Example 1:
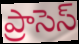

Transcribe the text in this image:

ప్రాసెస్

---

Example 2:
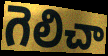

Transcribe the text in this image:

గెలిచా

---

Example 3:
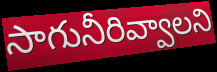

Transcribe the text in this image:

సాగునీరివ్వాలని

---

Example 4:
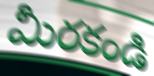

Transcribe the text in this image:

మీరకండి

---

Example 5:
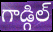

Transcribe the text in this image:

గాడ్గిల్